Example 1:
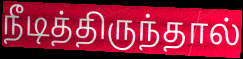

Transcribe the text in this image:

நீடித்திருந்தால்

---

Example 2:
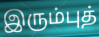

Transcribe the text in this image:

இரும்புத்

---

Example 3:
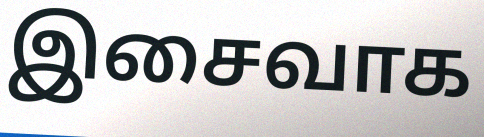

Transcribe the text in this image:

இசைவாக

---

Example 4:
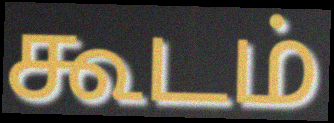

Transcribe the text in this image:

கூடம்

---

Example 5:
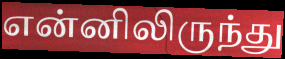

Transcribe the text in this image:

என்னிலிருந்து